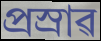
প্ৰস্ৰাৱ